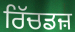
ਰਿੱਚਡਜ਼